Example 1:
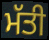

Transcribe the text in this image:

ਮੱਤੀ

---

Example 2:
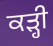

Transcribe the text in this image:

ਕੜ੍ਹੀ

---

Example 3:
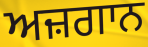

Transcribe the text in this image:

ਅਜ਼ਗਾਨ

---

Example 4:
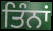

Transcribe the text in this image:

ਤਿੰਨਾਂ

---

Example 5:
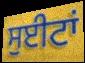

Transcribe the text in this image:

ਸੁਈਟਾਂ